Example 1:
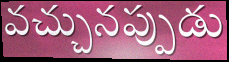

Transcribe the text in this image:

వచ్చునప్పుడు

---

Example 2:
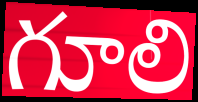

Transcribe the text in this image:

గూలి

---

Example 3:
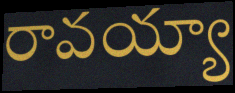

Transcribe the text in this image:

రావయ్యా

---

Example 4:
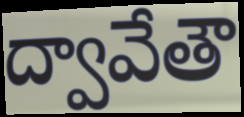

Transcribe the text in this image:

ద్వావేతౌ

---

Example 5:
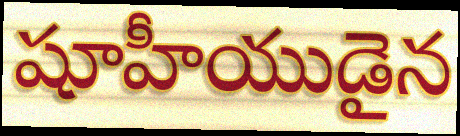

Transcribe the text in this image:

షూహీయుడైన